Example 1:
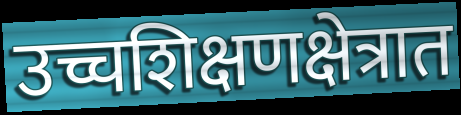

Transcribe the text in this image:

उच्चशिक्षणक्षेत्रात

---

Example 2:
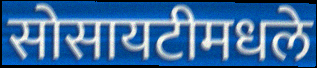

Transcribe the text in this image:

सोसायटीमधले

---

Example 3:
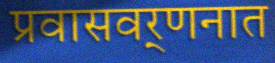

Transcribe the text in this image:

प्रवासवर्णनात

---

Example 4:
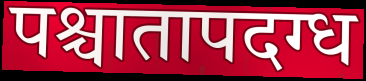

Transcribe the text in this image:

पश्चातापदग्ध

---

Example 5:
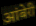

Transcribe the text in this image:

आंबेरी